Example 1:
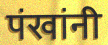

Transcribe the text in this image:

पंखांनी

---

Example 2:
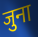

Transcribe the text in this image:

जुना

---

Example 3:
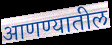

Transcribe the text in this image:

आणण्यातील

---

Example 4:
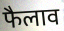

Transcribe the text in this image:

फैलाव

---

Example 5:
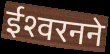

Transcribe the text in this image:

ईश्वरनने